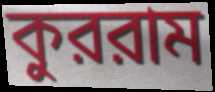
কুররাম